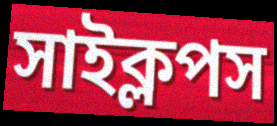
সাইক্লপস